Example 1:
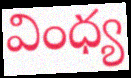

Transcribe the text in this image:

వింధ్య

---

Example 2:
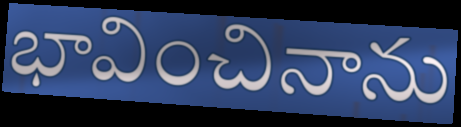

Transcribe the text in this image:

భావించినాను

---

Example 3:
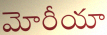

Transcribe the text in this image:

మోరీయా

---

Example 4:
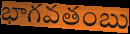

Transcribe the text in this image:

భాగవతంబు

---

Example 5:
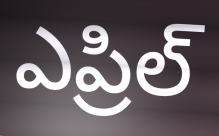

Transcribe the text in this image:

ఎప్రిల్